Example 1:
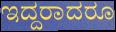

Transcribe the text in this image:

ಇದ್ದರಾದರೂ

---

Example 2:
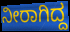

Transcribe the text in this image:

ನೀರಾಗಿದ್ದ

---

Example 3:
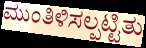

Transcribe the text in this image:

ಮುಂತಿಳಿಸಲ್ಪಟ್ಟಿತು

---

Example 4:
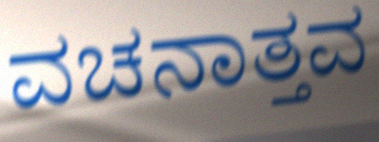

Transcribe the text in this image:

ವಚನಾತ್ತವ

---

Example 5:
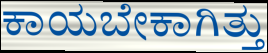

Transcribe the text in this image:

ಕಾಯಬೇಕಾಗಿತ್ತು